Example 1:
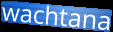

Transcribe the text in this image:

wachtana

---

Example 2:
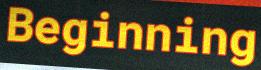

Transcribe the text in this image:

Beginning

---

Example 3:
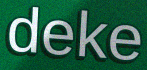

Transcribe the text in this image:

deke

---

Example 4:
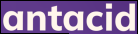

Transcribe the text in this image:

antacid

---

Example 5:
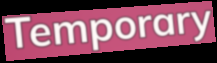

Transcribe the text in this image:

Temporary